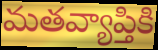
మతవ్యాప్తికి